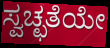
ಸ್ವಚ್ಛತೆಯೇ